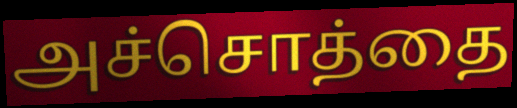
அச்சொத்தை